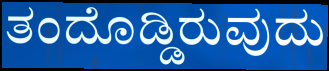
ತಂದೊಡ್ಡಿರುವುದು